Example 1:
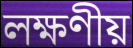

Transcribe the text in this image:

লক্ষণীয়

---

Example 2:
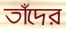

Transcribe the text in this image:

তাঁদের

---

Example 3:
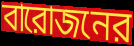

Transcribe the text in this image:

বারোজনের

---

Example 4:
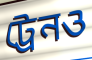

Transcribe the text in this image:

ট্রেনও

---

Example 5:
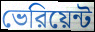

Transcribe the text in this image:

ভেরিয়েন্ট